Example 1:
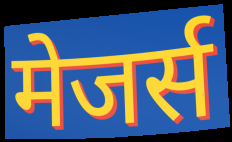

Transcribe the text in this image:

मेजर्स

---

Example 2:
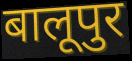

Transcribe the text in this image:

बालूपुर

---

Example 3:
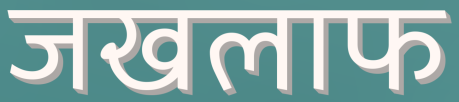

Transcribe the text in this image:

जखलाफ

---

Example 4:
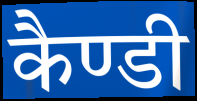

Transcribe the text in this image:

कैण्डी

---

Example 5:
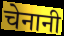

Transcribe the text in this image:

चेनानी